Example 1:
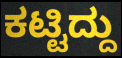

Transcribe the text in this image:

ಕಟ್ಟಿದ್ದು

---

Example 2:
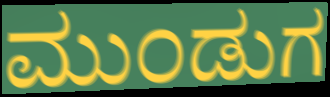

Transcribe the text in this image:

ಮುಂಡುಗ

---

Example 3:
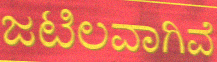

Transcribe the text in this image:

ಜಟಿಲವಾಗಿವೆ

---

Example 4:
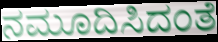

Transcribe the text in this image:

ನಮೂದಿಸಿದಂತೆ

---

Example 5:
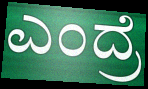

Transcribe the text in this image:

ಎಂದ್ರೆ